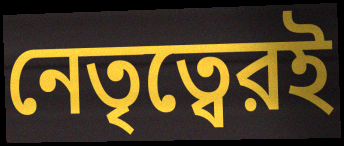
নেতৃত্বেরই